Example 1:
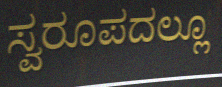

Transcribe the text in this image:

ಸ್ವರೂಪದಲ್ಲೂ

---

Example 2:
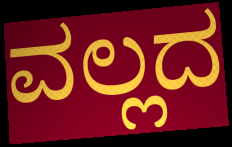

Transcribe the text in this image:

ವಲ್ಲದ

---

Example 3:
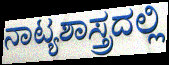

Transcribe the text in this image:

ನಾಟ್ಯಶಾಸ್ತ್ರದಲ್ಲಿ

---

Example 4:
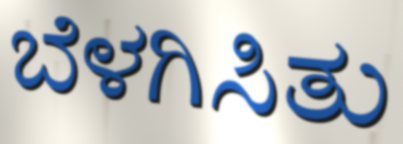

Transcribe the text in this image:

ಬೆಳಗಿಸಿತು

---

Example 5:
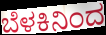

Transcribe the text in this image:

ಬೆಳಕಿನಿಂದ